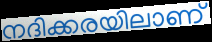
നദിക്കരയിലാണ്